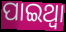
ପାଇଥ୍ବା